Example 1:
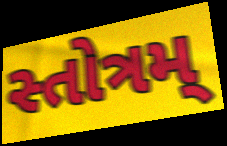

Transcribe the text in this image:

સ્તોત્રમ્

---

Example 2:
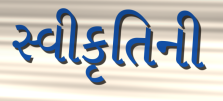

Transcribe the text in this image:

સ્વીકૃતિની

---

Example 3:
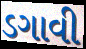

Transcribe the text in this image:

ડગાવી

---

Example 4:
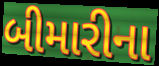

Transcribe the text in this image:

બીમારીના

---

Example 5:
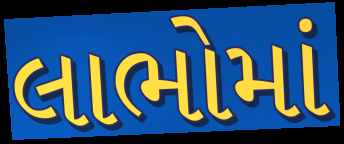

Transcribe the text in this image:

લાભોમાં